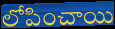
లోపించాయి